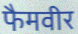
फैमवीर